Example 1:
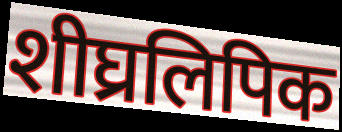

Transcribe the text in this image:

शीघ्रलिपिक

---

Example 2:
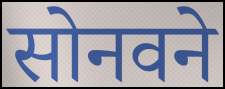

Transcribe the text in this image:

सोनवने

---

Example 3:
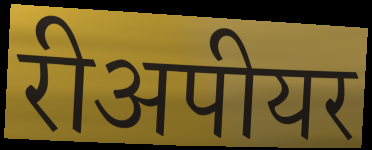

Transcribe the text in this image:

रीअपीयर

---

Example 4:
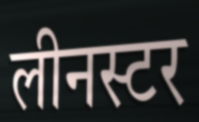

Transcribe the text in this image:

लीनस्टर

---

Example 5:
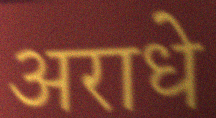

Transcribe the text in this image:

अराधे